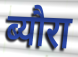
ब्यौरा